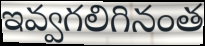
ఇవ్వగలిగినంత